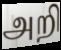
அறி